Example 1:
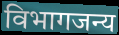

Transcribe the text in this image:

विभागजन्य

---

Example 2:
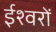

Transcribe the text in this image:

ईश्वरों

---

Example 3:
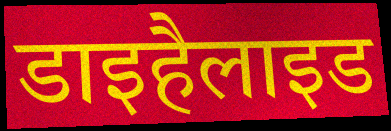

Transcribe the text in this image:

डाइहैलाइड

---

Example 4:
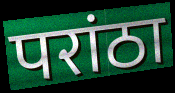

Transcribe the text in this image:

परांठा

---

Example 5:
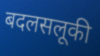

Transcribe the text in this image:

बदलसलूकी